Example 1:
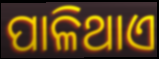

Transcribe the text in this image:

ପାଳିଥାଏ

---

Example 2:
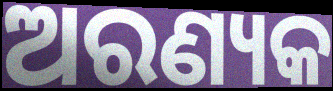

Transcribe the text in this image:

ଅରଣ୍ୟକ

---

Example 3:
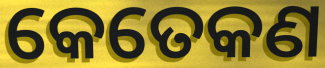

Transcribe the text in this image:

କେତେକଣ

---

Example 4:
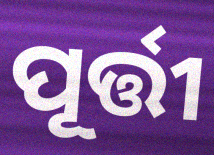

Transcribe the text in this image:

ପୂର୍ତ୍ତୀ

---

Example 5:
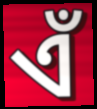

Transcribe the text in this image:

ଏଁ